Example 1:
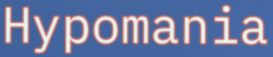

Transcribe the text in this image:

Hypomania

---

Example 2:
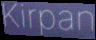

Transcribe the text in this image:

Kirpan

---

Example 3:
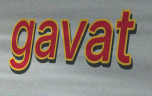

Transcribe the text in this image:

gavat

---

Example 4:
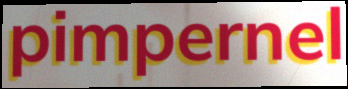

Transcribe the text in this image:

pimpernel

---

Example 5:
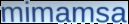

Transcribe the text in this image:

mimamsa